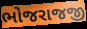
ભોજરાજજી